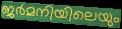
ജർമനിയിലെയും